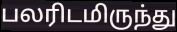
பலரிடமிருந்து